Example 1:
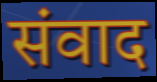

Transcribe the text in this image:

संवाद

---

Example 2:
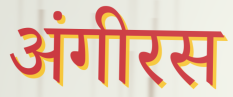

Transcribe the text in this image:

अंगीरस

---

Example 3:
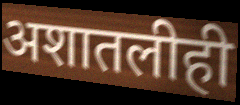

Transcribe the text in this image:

अशातलीही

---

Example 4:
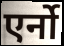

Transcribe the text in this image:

एर्नो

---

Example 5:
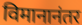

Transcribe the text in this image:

विमानानंतर